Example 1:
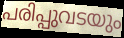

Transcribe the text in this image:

പരിപ്പുവടയും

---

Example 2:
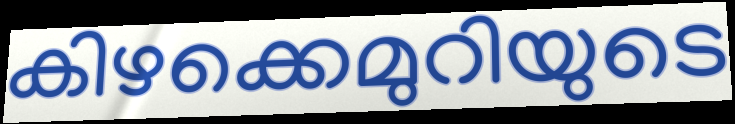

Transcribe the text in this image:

കിഴക്കെമുറിയുടെ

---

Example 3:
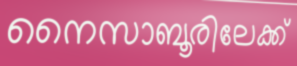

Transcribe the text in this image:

നൈസാബൂരിലേക്ക്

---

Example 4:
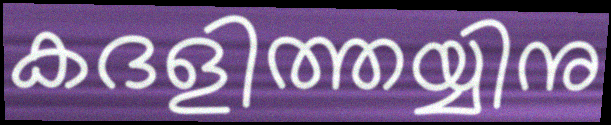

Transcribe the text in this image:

കദളിത്തയ്യിനു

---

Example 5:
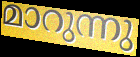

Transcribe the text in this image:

മാറുന്നു